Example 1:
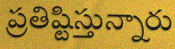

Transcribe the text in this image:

ప్రతిష్టిస్తున్నారు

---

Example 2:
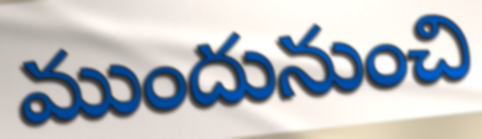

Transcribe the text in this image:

ముందునుంచి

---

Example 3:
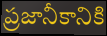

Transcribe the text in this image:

ప్రజానీకానికి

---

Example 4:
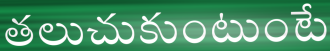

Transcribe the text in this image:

తలుచుకుంటుంటే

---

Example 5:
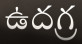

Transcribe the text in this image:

ఉదగ్ర